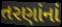
તરણાંનાં